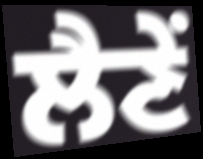
ਲੈਣੇਂ